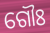
ଗୌଃ